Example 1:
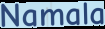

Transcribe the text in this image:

Namala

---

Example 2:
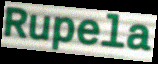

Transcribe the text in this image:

Rupela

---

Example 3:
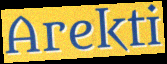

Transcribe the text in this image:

Arekti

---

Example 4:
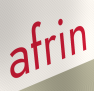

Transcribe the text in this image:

afrin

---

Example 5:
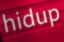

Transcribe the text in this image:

hidup